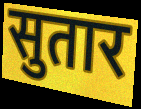
सुतार